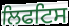
ਲਿਫਟਿਸ